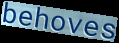
behoves